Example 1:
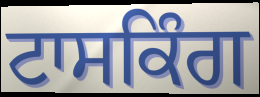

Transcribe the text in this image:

ਟਾਸਕਿੰਗ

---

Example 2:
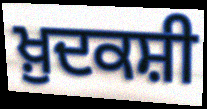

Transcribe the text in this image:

ਖ਼ੁਦਕਸ਼ੀ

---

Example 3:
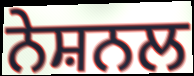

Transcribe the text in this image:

ਨੇਸ਼ਨਲ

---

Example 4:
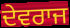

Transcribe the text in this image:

ਦੇਵਰਾਜ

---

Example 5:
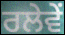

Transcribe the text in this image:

ਰਲੇਵੇਂ